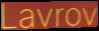
Lavrov